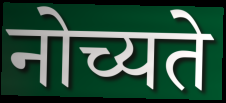
नोच्यते